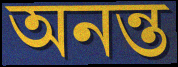
অনন্ত